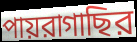
পায়রাগাছির